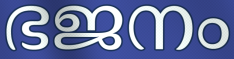
ഭജനം